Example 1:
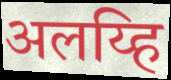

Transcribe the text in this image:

अलय्हि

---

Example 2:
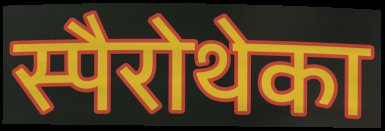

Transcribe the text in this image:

स्पैरोथेका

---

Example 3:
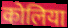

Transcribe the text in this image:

कोलिया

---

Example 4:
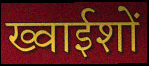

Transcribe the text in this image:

ख्वाईशों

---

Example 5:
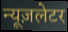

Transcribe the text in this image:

न्यूज़लेटर